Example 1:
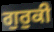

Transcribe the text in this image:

ਗੁਰੁਕੀ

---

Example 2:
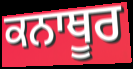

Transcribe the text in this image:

ਕਨਾਥੂਰ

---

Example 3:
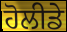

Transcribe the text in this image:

ਹੋਲੀਡੇ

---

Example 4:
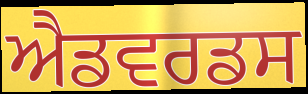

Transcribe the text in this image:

ਐਡਵਰਡਸ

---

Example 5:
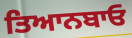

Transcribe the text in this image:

ਤਿਆਨਬਾਓ